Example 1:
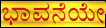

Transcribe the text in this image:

ಭಾವನೆಯೇ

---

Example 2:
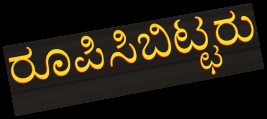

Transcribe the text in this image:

ರೂಪಿಸಿಬಿಟ್ಟರು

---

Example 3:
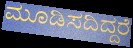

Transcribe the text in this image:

ಮೂಡಿಸದಿದ್ದರೆ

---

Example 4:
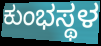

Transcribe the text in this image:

ಕುಂಭಸ್ಥಳ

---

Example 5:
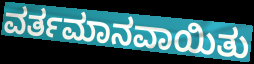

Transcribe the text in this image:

ವರ್ತಮಾನವಾಯಿತು